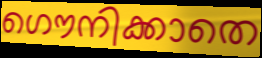
ഗൌനിക്കാതെ